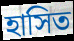
হাসিত